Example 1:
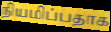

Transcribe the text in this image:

நியமிப்பதாக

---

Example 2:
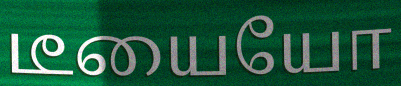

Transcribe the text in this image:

டீயையோ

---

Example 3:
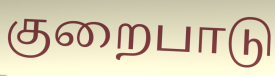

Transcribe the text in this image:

குறைபாடு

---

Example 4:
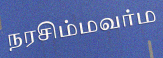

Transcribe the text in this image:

நரசிம்மவர்ம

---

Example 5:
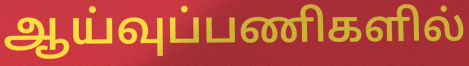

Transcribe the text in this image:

ஆய்வுப்பணிகளில்